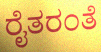
ರೈತರಂತೆ